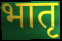
भातृ